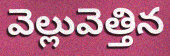
వెల్లువెత్తిన